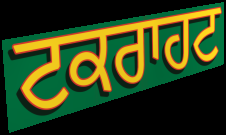
ਟਕਰਾਹਟ